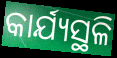
କାର୍ଯ୍ୟସ୍ଥଳି